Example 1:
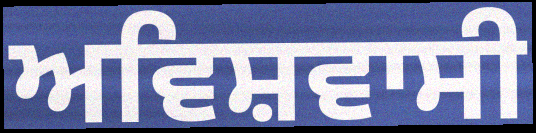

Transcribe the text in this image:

ਅਵਿਸ਼ਵਾਸੀ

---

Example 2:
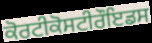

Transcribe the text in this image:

ਕੋਰਟੀਕੋਸਟੀਰੌਇਡਸ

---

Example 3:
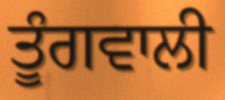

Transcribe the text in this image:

ਤੂੰਗਵਾਲੀ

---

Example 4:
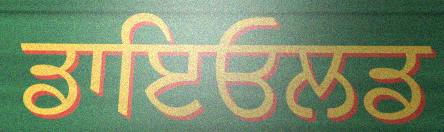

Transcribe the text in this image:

ਡਾਇਓਲਡ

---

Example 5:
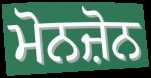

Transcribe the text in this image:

ਮੋਨਜ਼ੋਨ